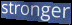
stronger